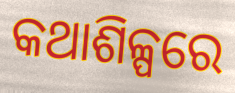
କଥାଶିଳ୍ପରେ